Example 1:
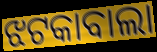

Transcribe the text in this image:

ଝଟକାବାଲା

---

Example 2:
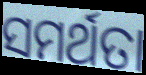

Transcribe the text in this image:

ସମର୍ଥତା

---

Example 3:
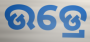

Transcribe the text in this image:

ଉଡ୍ରେ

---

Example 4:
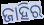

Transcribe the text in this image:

ଜାହିର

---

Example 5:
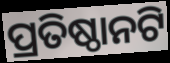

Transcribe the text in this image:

ପ୍ରତିଷ୍ଠାନଟି